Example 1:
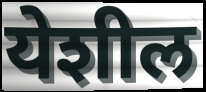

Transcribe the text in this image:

येशील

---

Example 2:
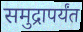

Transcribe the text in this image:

समुद्रापर्यंत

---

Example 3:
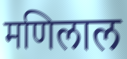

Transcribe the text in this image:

मणिलाल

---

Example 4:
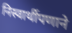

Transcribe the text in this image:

निस्वार्थीपणाने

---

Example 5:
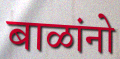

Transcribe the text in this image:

बाळांनो